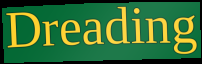
Dreading